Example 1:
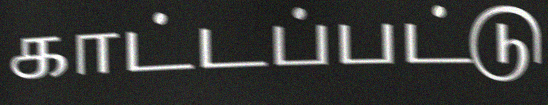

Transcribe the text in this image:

காட்டப்பட்டு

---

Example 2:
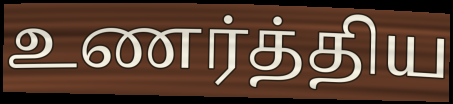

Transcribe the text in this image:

உணர்த்திய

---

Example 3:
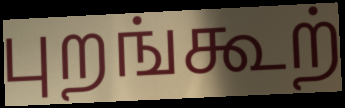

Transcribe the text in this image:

புறங்கூற்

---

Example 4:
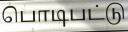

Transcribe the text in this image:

பொடிபட்டு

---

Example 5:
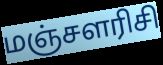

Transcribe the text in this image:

மஞ்சளரிசி